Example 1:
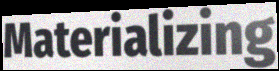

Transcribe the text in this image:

Materializing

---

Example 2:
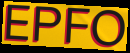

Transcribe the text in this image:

EPFO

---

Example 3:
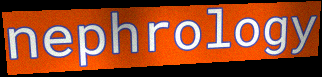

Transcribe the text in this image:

nephrology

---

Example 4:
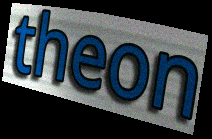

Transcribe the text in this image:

theon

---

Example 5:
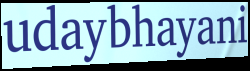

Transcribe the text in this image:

udaybhayani